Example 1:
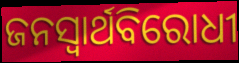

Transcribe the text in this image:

ଜନସ୍ଵାର୍ଥବିରୋଧୀ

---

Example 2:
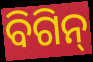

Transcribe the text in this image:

ବିଗିନ୍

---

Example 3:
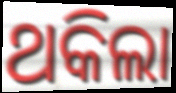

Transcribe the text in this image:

ଥକିଲା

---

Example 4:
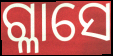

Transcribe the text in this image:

ଗ୍ଳାସେ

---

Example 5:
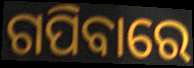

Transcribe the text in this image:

ଗପିବାରେ